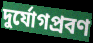
দুর্যোগপ্রবণ